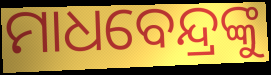
ମାଧବେନ୍ଦ୍ରଙ୍କୁ